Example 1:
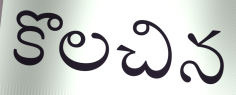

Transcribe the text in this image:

కొలచిన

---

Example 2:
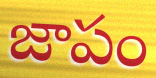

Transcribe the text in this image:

జాపం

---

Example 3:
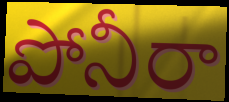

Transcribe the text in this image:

పోనీరా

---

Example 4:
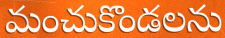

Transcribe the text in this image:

మంచుకొండలను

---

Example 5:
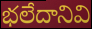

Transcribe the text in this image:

భలేదానివి